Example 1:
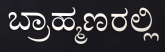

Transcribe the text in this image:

ಬ್ರಾಹ್ಮಣರಲ್ಲಿ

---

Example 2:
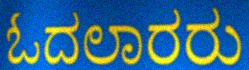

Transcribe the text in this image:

ಓದಲಾರರು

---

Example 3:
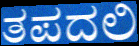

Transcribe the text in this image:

ತಪದಲಿ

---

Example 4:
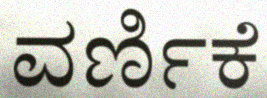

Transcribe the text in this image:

ವರ್ಣಿಕೆ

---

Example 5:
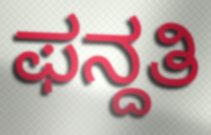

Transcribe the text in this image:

ಫನ್ದತಿ